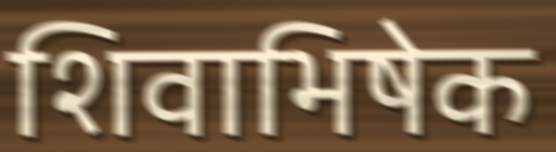
शिवाभिषेक